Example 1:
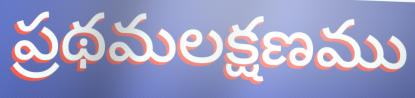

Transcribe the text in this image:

ప్రథమలక్షణము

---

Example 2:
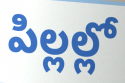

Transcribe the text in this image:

పిల్లల్లో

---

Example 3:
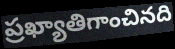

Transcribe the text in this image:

ప్రఖ్యాతిగాంచినది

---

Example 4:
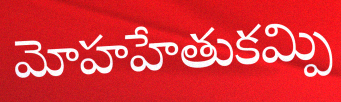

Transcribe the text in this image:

మోహహేతుకమ్పి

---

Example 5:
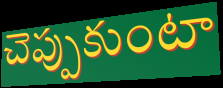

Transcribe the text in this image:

చెప్పుకుంటా